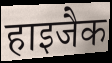
हाइजैक